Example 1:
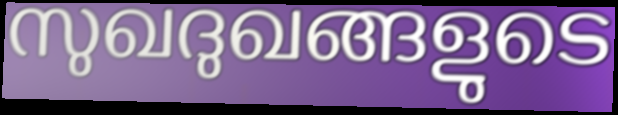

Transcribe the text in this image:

സുഖദുഖങ്ങളുടെ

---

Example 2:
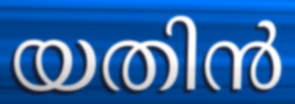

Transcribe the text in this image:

യതിൻ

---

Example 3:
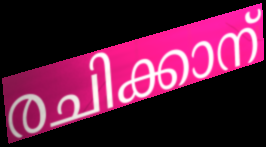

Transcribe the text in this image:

രചിക്കാന്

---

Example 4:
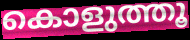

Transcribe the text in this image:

കൊളുത്തൂ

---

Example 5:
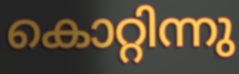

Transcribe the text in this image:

കൊറ്റിന്നു